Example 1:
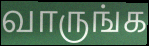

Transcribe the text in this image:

வாருங்க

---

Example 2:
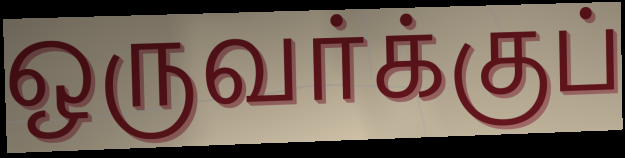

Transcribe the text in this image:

ஒருவர்க்குப்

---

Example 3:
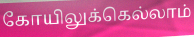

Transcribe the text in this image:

கோயிலுக்கெல்லாம்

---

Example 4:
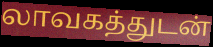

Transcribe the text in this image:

லாவகத்துடன்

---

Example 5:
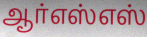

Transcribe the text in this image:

ஆர்எஸ்எஸ்